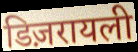
डिज़रायली